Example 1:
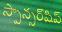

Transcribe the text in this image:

స్పాన్సర్‌షిప్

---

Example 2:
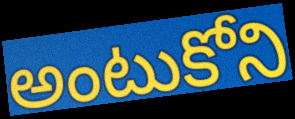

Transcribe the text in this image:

అంటుకోని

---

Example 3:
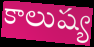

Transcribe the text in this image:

కాలుష్య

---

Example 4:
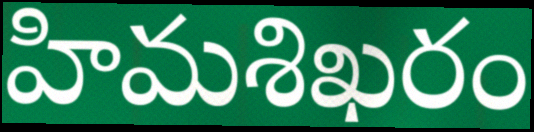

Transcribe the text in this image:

హిమశిఖరం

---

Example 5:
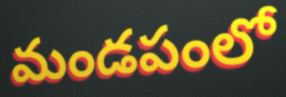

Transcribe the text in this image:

మండపంలో